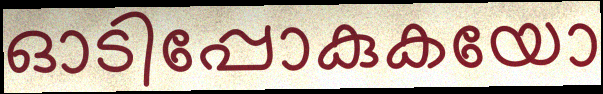
ഓടിപ്പോകുകയോ